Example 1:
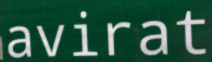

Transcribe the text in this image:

avirat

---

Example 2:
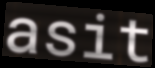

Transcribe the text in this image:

asit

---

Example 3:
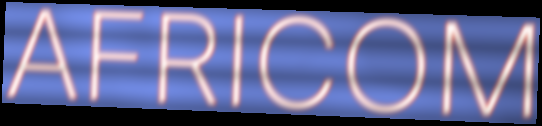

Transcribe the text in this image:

AFRICOM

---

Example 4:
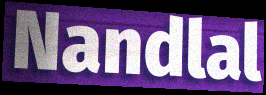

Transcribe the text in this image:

Nandlal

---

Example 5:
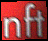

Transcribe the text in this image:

nft